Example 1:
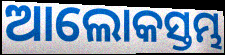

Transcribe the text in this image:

ଆଲୋକସ୍ତମ୍ଭ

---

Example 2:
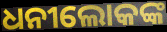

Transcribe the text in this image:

ଧନୀଲୋକଙ୍କ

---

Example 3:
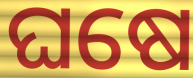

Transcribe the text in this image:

ଘଷେ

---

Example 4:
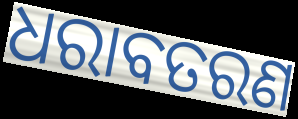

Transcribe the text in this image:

ଧରାବତରଣ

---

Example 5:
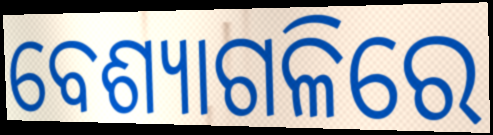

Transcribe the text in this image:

ବେଶ୍ୟାଗଳିରେ